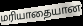
மரியாதையான